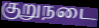
குறுநடை